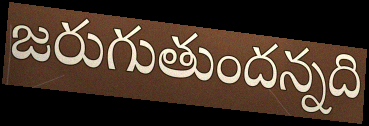
జరుగుతుందన్నది